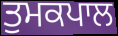
ਤੁਮਕਪਾਲ